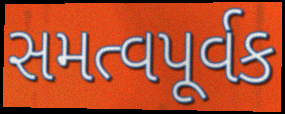
સમત્વપૂર્વક